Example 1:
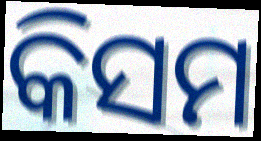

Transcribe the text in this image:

କିସମ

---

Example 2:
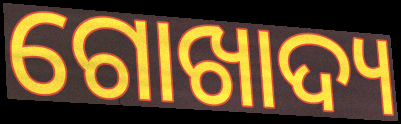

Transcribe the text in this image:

ଗୋଖାଦ୍ୟ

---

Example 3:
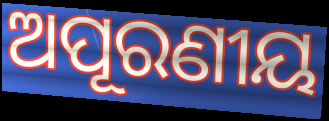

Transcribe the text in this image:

ଅପୂରଣୀୟ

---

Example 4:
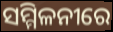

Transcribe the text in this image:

ସମ୍ମିଳନୀରେ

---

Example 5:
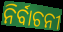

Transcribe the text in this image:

ନିର୍ବାଚନୀ